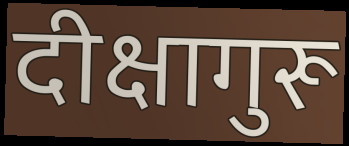
दीक्षागुरू